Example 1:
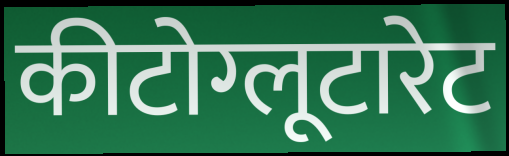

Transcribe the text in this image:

कीटोग्लूटारेट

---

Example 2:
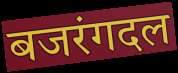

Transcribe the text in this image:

बजरंगदल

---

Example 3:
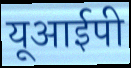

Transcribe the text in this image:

यूआईपी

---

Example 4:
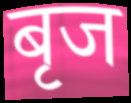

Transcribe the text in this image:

बृज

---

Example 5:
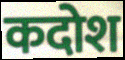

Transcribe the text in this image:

कदोश